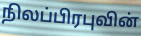
நிலப்பிரபுவின்